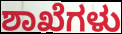
ಶಾಖೆಗಳು